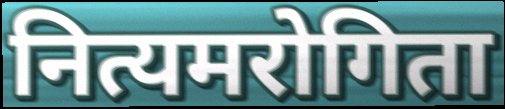
नित्यमरोगिता